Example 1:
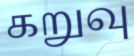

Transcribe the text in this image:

கறுவு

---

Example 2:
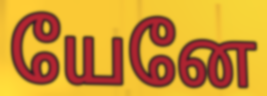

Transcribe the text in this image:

யேனே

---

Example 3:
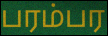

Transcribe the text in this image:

பரம்பர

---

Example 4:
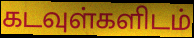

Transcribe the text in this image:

கடவுள்களிடம்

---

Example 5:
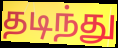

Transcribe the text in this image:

தடிந்து